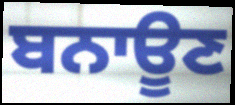
ਬਨਾਊਣ